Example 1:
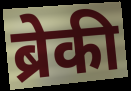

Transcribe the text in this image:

ब्रेकी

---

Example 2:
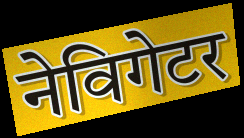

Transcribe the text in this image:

नेविगेटर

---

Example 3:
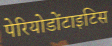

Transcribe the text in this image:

पेरियोडोंटाइटिस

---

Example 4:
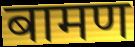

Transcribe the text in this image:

बामण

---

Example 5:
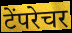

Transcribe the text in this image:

टेंपरेचर